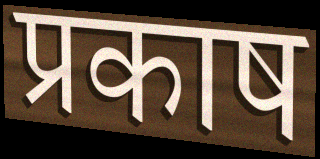
प्रकाष